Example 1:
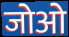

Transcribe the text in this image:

जोओ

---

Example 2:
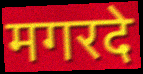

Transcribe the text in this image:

मगरदे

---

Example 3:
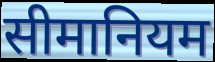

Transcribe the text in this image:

सीमानियम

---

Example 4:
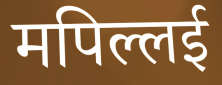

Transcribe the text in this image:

मपिल्लई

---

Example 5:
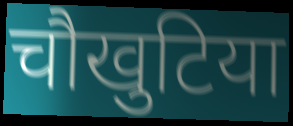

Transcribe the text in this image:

चौखुटिया